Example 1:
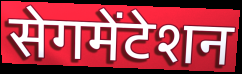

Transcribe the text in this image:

सेगमेंटेशन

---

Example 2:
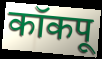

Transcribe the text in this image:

कॉकपू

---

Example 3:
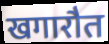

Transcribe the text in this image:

खगारौत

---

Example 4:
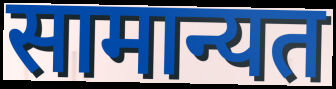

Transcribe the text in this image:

सामान्यत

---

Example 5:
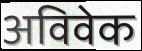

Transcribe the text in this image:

अविवेक